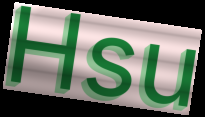
Hsu